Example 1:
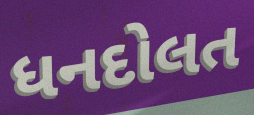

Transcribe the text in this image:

ધનદોલત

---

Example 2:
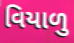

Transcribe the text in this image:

વિયાળુ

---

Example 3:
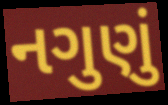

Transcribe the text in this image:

નગુણું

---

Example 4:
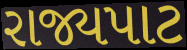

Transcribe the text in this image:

રાજ્યપાટ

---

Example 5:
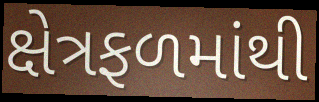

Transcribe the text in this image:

ક્ષેત્રફળમાંથી